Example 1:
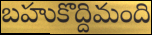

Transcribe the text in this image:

బహుకొద్దిమంది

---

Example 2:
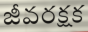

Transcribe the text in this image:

జీవరక్షక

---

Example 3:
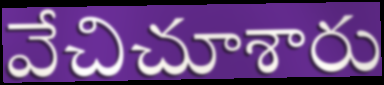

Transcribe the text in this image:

వేచిచూశారు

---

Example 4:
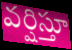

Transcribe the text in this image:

వర్షిస్తూ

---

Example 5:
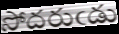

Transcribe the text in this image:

సోదరుఁడు